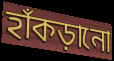
হাঁকড়ানো